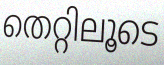
തെറ്റിലൂടെ